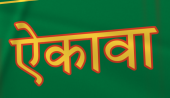
ऐकावा